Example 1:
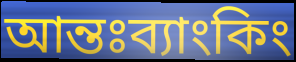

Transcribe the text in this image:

আন্তঃব্যাংকিং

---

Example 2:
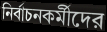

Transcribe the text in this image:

নির্বাচনকর্মীদের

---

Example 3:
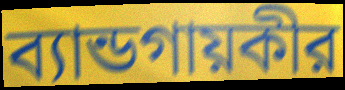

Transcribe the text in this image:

ব্যান্ডগায়কীর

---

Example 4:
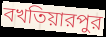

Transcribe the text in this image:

বখতিয়ারপুর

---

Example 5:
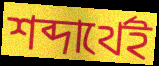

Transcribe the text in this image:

শব্দার্থেই